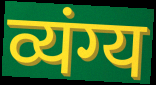
व्‍यंग्‍य